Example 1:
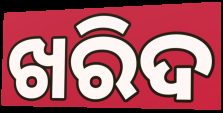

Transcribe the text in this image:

ଖରିଦ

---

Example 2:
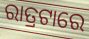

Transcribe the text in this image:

ରାତ୍ରଟାରେ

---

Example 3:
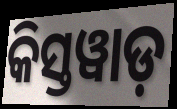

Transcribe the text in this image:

କିସ୍ତୱାଡ଼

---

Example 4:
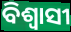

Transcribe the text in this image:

ବିଶ୍ୱାସୀ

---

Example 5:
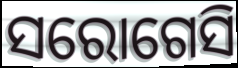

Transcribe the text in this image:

ସରୋଗେସି